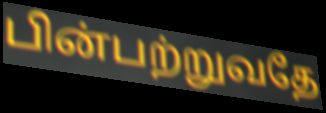
பின்பற்றுவதே